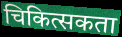
चिकित्सकता